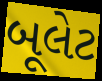
બૂલેટ